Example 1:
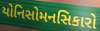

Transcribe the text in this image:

યોનિસોમનસિકારો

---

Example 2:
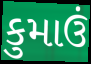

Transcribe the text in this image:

કુમાઉં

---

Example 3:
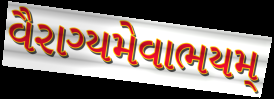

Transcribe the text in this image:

વૈરાગ્યમેવાભયમ્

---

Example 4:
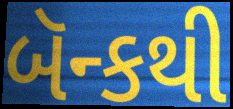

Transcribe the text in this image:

બૅન્કથી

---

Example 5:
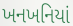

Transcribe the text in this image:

ખનખનિયાં